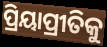
ପ୍ରିୟାପ୍ରୀତିକୁ